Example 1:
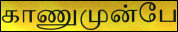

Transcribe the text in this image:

காணுமுன்பே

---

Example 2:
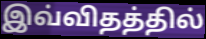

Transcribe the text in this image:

இவ்விதத்தில்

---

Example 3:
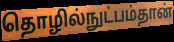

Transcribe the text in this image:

தொழில்நுட்பம்தான்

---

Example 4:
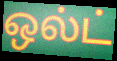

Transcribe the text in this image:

ஒல்ட்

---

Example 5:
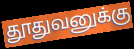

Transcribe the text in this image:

தூதுவனுக்கு